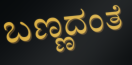
ಬಣ್ಣದಂತೆ